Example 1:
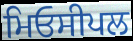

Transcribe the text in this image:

ਮਿਓਸੀਪਲ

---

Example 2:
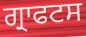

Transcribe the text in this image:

ਗ੍ਰਾਫਟਸ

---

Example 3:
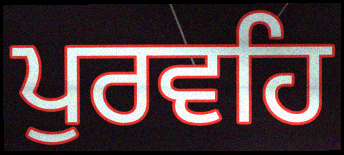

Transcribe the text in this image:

ਪੁਰਵਹਿ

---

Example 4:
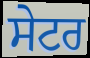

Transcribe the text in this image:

ਸੇਟਰ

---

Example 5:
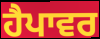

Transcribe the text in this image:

ਹੈਪਾਵਰ